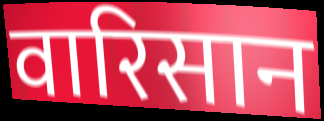
वारिसान